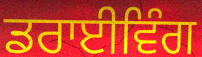
ਡਰਾਈਵਿੰਗ